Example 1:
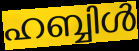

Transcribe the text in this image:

ഹബ്ബിൾ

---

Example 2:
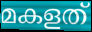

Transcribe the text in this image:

മകളത്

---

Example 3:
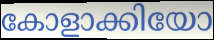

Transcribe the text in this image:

കോളാക്കിയോ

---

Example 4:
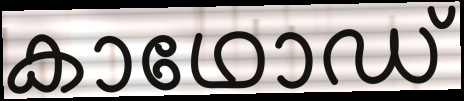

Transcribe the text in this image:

കാഥോഡ്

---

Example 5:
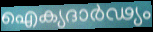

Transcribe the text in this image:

ഐക്യദാർഢ്യം